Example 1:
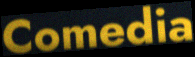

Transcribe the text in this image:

Comedia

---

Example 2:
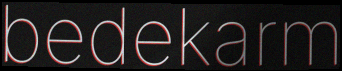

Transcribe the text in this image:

bedekarm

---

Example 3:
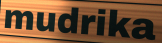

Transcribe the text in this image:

mudrika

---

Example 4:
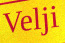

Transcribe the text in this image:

Velji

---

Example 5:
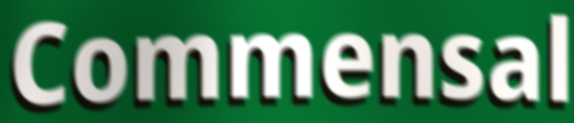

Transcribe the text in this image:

Commensal